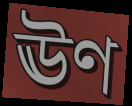
ঊণ